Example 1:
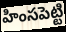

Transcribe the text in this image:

హింసపెట్టి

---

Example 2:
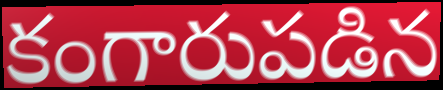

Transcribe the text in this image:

కంగారుపడిన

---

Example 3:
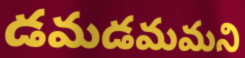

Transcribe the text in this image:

డమడమమని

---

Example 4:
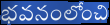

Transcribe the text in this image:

భవనంలోంచి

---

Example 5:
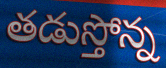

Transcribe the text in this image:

తడుస్తోన్న